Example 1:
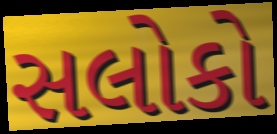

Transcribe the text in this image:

સલોકો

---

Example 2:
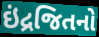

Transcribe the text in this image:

ઇંદ્રજિતનો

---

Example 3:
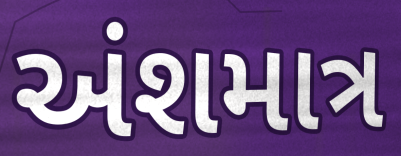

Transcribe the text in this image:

અંશમાત્ર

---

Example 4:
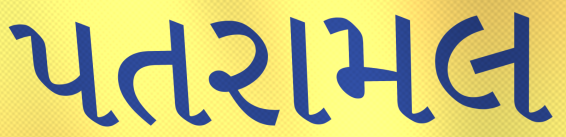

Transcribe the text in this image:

પતરામલ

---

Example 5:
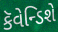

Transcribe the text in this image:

કૅવેન્ડિશે